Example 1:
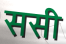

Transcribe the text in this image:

ससी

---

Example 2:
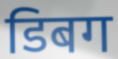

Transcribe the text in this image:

डिबग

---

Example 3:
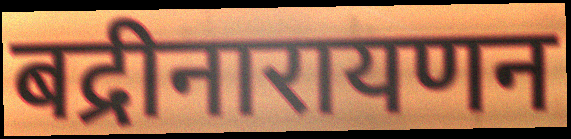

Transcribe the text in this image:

बद्रीनारायणन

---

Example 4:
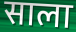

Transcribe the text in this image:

साला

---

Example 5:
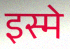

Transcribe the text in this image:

इस्मे